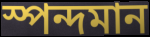
স্পন্দমান